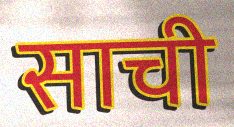
साची